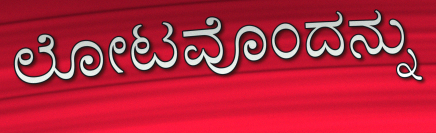
ಲೋಟವೊಂದನ್ನು